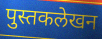
पुस्तकलेखन